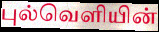
புல்வெளியின்